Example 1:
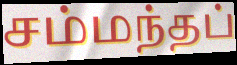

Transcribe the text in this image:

சம்மந்தப்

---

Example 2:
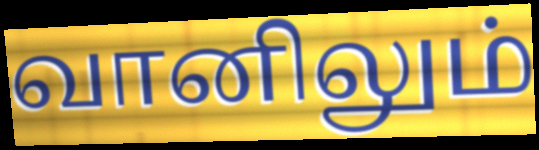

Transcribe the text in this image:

வானிலும்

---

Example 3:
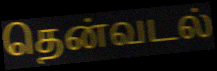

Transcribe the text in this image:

தென்வடல்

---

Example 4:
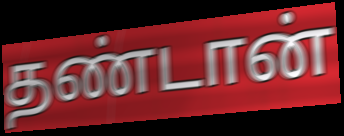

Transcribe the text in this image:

தண்டான்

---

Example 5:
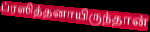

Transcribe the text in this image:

ப்ரஸித்தனாயிருந்தான்